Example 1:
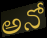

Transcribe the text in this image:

అనో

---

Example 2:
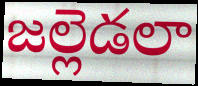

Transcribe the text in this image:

జల్లెడలా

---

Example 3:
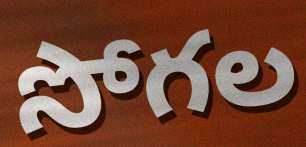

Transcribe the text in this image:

సోగల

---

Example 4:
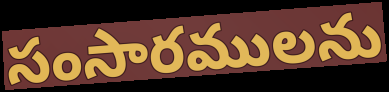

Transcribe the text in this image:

సంసారములను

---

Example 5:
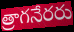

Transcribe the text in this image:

త్రాగనేరరు